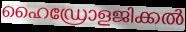
ഹൈഡ്രോളജിക്കൽ